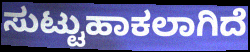
ಸುಟ್ಟುಹಾಕಲಾಗಿದೆ